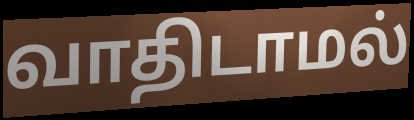
வாதிடாமல்